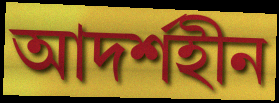
আদৰ্শহীন